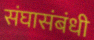
संघासंबंधी